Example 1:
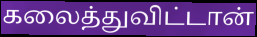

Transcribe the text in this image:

கலைத்துவிட்டான்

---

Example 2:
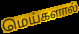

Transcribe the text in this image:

மெய்களால்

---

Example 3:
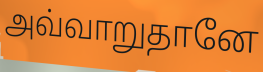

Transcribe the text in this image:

அவ்வாறுதானே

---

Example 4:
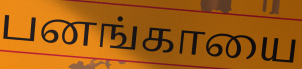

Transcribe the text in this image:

பனங்காயை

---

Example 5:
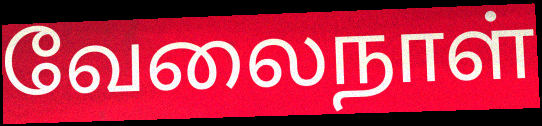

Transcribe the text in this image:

வேலைநாள்